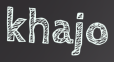
khajo